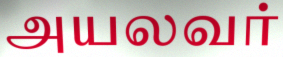
அயலவர்